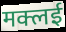
मक्लई